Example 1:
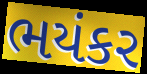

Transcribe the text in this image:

ભયંકર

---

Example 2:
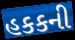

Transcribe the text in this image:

હકકની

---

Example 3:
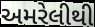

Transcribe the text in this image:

અમરેલીથી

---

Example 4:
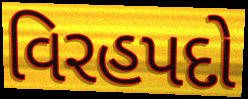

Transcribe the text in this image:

વિરહપદો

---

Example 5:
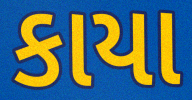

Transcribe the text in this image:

કાયા